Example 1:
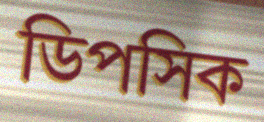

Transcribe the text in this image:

ডিপসিক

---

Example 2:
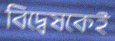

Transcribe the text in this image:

বিদ্বেষকেই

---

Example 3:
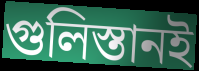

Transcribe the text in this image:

গুলিস্তানই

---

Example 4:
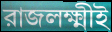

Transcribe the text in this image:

রাজলক্ষ্মীই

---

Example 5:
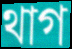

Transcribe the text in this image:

থাগ